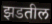
झडतील